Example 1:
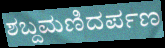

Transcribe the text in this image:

ಶಬ್ದಮಣಿದರ್ಪಣ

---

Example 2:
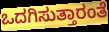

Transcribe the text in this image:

ಒದಗಿಸುತ್ತಾರಂತೆ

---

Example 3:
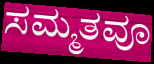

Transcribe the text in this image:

ಸಮ್ಮತವೂ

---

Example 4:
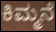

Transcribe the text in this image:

ಕಿಮ್ಮನೆ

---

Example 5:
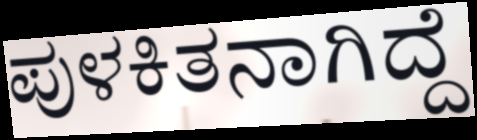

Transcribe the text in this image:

ಪುಳಕಿತನಾಗಿದ್ದೆ